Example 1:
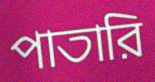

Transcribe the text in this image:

পাতারি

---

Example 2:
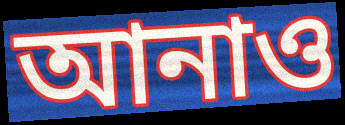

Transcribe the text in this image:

আনাও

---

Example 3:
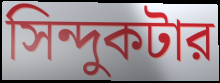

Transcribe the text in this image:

সিন্দুকটার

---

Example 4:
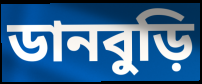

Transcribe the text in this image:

ডানবুড়ি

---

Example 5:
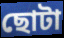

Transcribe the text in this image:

ছোটা